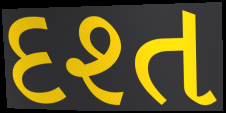
દશ્ત